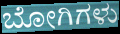
ಬೋಗಿಗಳು